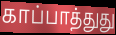
காப்பாத்துது